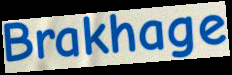
Brakhage